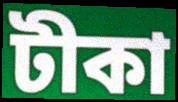
টীকা